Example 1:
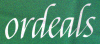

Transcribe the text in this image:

ordeals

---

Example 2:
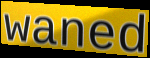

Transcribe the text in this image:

waned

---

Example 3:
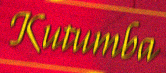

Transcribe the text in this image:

Kutumba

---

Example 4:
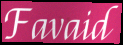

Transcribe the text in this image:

Favaid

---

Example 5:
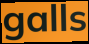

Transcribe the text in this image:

galls